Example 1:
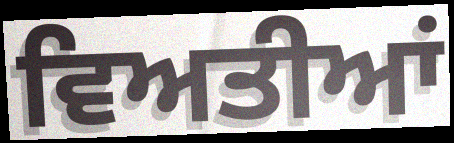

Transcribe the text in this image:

ਵਿਅਤੀਆਂ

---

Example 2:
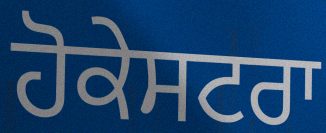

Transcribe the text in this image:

ਹੋਕੇਸਟਰਾ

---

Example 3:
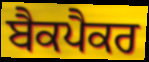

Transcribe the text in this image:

ਬੈਕਪੈਕਰ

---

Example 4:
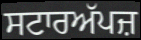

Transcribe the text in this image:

ਸਟਾਰਅੱਪਜ਼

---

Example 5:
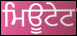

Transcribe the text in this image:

ਮਿਊਟੇਟ